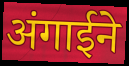
अंगाईने